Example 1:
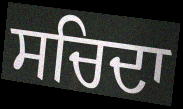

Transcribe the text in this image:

ਸਚਿਦਾ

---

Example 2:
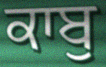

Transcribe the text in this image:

ਕਾਬੁ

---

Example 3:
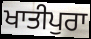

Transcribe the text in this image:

ਖਾਤੀਪੁਰਾ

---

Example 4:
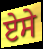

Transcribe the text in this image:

ਏਸੇ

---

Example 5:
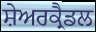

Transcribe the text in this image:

ਸ਼ੇਅਰਕ੍ਰੈਡਲ